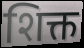
शिक्त